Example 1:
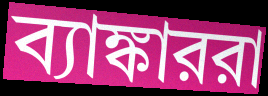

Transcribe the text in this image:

ব্যাঙ্কাররা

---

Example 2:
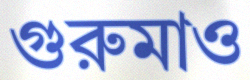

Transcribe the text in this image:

গুরুমাও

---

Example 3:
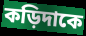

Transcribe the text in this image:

কড়িদাকে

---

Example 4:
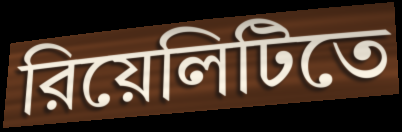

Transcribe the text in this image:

রিয়েলিটিতে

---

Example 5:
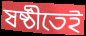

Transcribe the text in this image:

ষষ্ঠীতেই